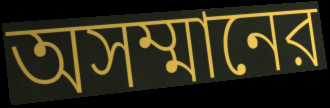
অসম্মানের